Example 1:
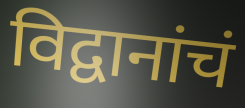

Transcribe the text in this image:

विद्वानांचं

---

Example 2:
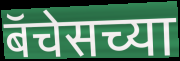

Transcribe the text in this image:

बॅचेसच्या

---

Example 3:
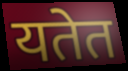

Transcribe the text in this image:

यतेत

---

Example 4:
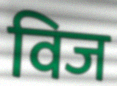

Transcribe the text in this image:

विज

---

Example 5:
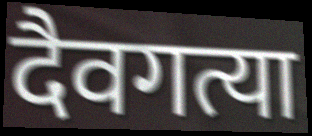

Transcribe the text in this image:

दैवगत्या